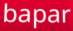
bapar